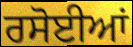
ਰਸੋਈਆਂ